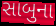
સાબુના